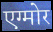
एग्मोर